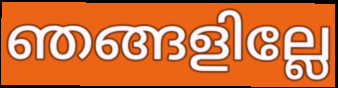
ഞങ്ങളില്ലേ